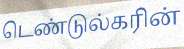
டெண்டுல்கரின்